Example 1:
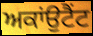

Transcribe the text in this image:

ਅਕਾਂਉਟੈਂਟ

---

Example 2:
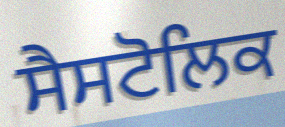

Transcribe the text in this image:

ਸੈਸਟੋਲਿਕ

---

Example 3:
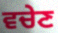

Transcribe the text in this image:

ਵਚੇਣ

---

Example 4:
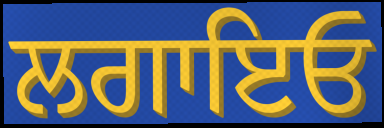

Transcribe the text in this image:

ਲਗਾਇਓ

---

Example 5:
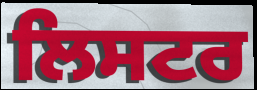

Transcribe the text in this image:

ਲਿਸਟਰ